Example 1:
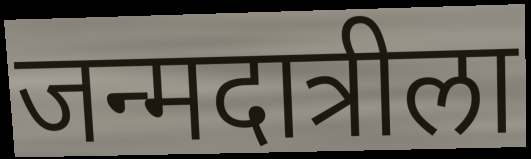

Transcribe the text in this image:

जन्मदात्रीला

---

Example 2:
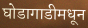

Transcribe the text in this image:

घोडागाडीमधून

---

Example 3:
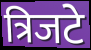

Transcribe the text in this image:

त्रिजटे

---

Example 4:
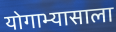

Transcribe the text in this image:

योगाभ्यासाला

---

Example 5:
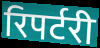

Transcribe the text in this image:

रिपर्टरी